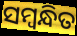
ସମ୍ବନ୍ଧିତ